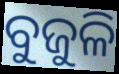
ବୁଜୁଳି